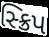
સ્ક્રિપ